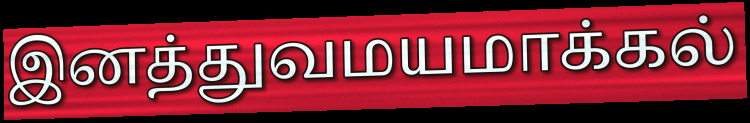
இனத்துவமயமாக்கல்